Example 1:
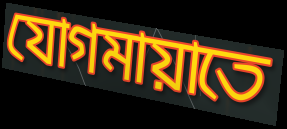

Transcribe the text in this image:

যোগমায়াতে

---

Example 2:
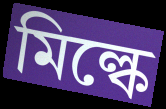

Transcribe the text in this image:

মিল্কে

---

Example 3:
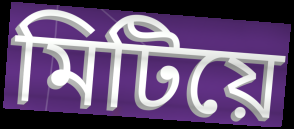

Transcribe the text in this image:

মিটিয়ে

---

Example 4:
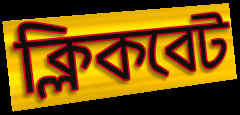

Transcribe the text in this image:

ক্লিকবেট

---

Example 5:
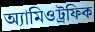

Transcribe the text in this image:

অ্যামিওট্রফিক